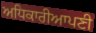
ਅਧਿਕਾਰੀਆਪਣੀ